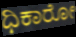
ಧಿಕಾರೋ